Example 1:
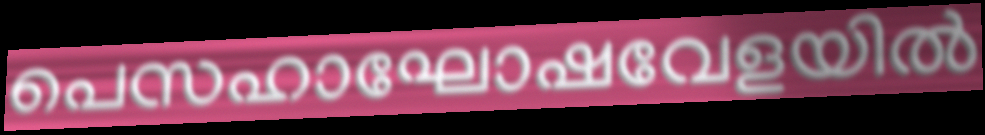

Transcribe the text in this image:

പെസഹാഘോഷവേളയിൽ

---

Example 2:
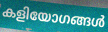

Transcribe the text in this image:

കളിയോഗങ്ങൾ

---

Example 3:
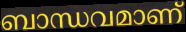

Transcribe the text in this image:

ബാന്ധവമാണ്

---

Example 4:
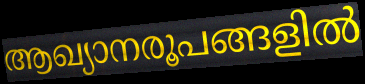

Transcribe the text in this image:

ആഖ്യാനരൂപങ്ങളിൽ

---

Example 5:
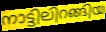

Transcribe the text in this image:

നാട്ടിലിറങ്ങിയ